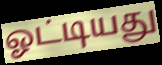
ஓட்டியது